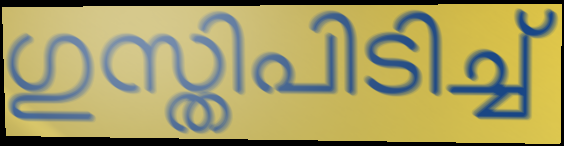
ഗുസ്തിപിടിച്ച്